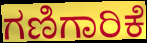
ಗಣಿಗಾರಿಕೆ